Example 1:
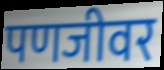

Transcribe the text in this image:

पणजीवर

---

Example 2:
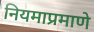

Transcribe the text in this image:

नियमाप्रमाणे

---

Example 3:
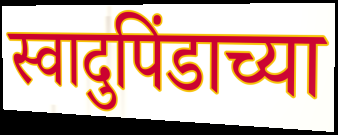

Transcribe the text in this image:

स्वादुपिंडाच्या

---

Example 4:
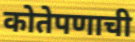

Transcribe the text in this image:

कोतेपणाची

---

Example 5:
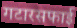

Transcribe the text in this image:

गटारसफाई